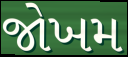
જોખમ